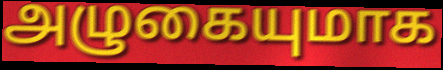
அழுகையுமாக